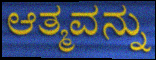
ಆತ್ಮವನ್ನು